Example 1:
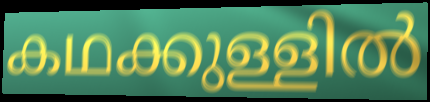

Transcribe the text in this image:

കഥക്കുള്ളിൽ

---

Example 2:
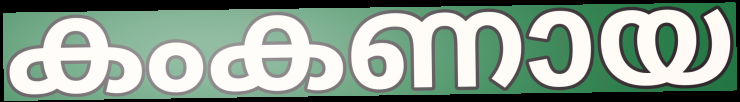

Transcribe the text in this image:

കംകണായ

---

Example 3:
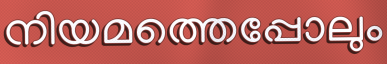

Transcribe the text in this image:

നിയമത്തെപ്പോലും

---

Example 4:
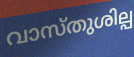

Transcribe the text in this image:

വാസ്തുശില്പ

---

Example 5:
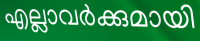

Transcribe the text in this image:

എല്ലാവർക്കുമായി